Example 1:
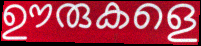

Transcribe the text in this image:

ഊരുകളെ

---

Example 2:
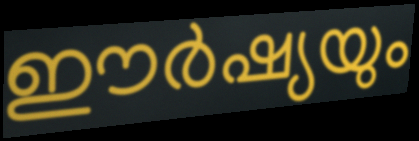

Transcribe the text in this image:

ഈർഷ്യയും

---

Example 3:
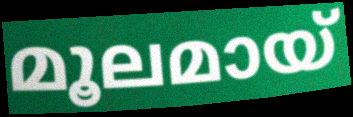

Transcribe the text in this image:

മൂലമായ്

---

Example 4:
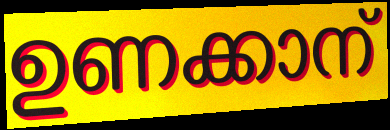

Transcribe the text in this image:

ഉണക്കാന്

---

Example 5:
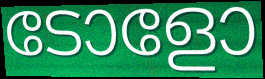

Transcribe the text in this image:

ടോളോ